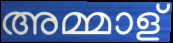
അമ്മാള്